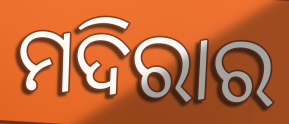
ମଦିରାର